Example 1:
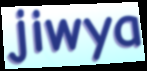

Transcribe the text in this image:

jiwya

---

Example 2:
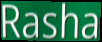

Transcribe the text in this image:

Rasha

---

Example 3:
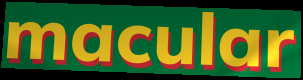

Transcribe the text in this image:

macular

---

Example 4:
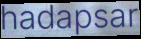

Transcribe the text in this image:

hadapsar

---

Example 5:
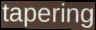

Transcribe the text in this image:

tapering